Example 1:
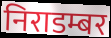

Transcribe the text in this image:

निराडम्बर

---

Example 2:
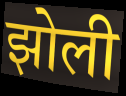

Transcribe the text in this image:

झोली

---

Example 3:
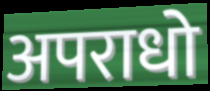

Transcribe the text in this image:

अपराधो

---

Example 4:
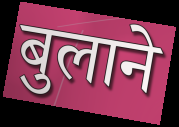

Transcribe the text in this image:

बुलाने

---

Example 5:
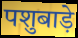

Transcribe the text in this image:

पशुबाड़े